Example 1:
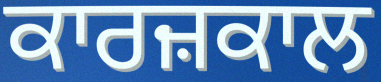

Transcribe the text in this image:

ਕਾਰਜ਼ਕਾਲ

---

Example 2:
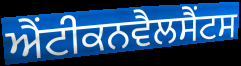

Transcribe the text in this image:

ਐਂਟੀਕਨਵੈਲਸੈਂਟਸ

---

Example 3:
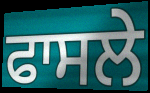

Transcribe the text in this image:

ਫਾਸਲੇ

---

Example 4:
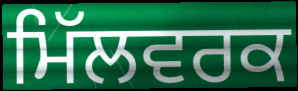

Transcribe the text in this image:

ਮਿੱਲਵਰਕ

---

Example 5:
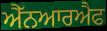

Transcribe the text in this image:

ਐੱਨਆਰਐਫ